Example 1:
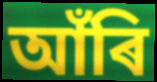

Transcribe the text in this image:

আঁৰি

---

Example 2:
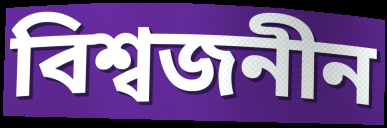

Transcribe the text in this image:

বিশ্বজনীন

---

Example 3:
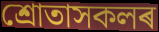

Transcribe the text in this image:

শ্ৰোতাসকলৰ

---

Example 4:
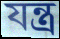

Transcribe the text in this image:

যন্ত্ৰ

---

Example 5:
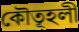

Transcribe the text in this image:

কৌতূহলী